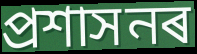
প্ৰশাসনৰ